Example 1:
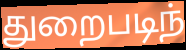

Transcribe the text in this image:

துறைபடிந்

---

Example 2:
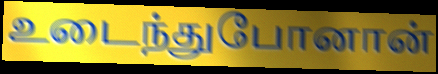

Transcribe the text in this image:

உடைந்துபோனான்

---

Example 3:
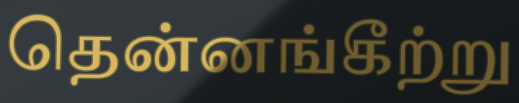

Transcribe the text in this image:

தென்னங்கீற்று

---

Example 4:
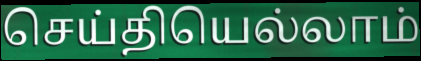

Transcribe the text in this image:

செய்தியெல்லாம்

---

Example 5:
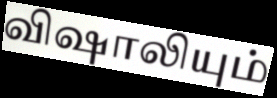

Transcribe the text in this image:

விஷாலியும்